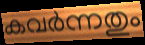
കവർന്നതും